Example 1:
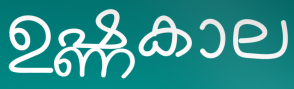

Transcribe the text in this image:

ഉഷ്ണകാല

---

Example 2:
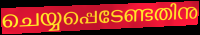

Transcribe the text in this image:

ചെയ്യപ്പെടേണ്ടതിനു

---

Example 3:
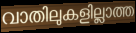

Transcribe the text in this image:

വാതിലുകളില്ലാത്ത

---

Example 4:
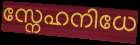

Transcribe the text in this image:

സ്നേഹനിധേ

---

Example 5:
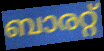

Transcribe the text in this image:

ബാരറ്റ്